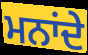
ਮਨਾਂਦੇ